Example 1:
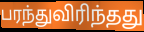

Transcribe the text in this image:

பரந்துவிரிந்தது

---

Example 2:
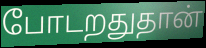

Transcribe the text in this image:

போடறதுதான்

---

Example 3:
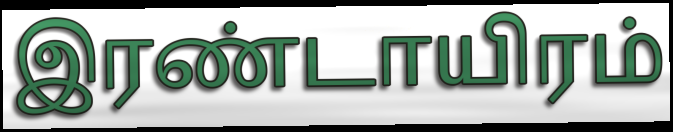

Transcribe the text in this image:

இரண்டாயிரம்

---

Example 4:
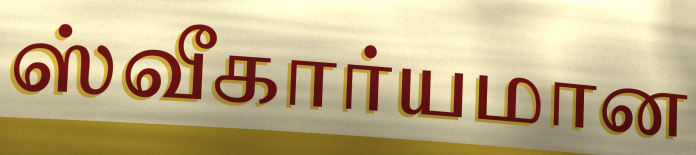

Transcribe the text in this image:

ஸ்வீகார்யமான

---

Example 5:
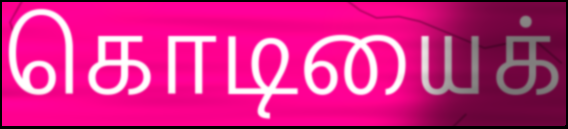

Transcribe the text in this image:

கொடியைக்